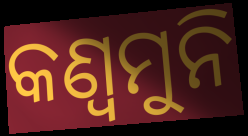
କଣ୍ୱମୁନି